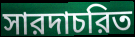
সারদাচরিত